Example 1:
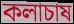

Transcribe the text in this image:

কলাচাষ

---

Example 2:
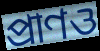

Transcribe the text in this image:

প্রাণও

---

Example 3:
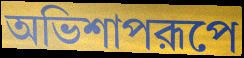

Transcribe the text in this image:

অভিশাপরূপে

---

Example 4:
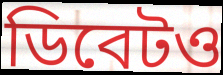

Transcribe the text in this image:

ডিবেটও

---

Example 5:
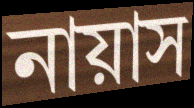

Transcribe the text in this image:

নায়াস